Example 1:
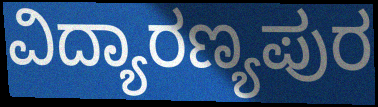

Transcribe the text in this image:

ವಿದ್ಯಾರಣ್ಯಪುರ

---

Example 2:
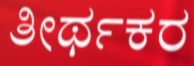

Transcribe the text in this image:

ತೀರ್ಥಕರ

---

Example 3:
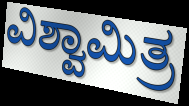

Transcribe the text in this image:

ವಿಶ್ವಾಮಿತ್ರ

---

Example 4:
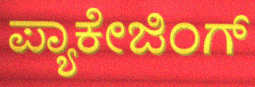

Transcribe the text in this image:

ಪ್ಯಾಕೇಜಿಂಗ್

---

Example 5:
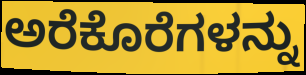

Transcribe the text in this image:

ಅರೆಕೊರೆಗಳನ್ನು